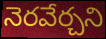
నెరవేర్చని